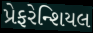
પ્રેફરેન્શિયલ